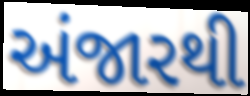
અંજારથી